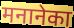
मनानेका